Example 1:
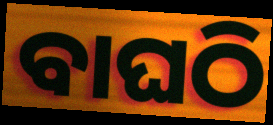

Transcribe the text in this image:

ବାଘଠି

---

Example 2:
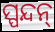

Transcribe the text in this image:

ସ୍ପନ୍ଦନ୍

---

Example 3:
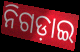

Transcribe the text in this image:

ନିଗଡ଼ାଇ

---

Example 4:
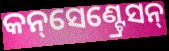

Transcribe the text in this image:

କନ୍‌ସେଣ୍ଟ୍ରେସନ୍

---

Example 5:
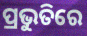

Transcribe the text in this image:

ପ୍ରଭୁତିରେ